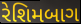
રેશિમબાગ